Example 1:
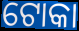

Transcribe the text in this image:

ଟୋକା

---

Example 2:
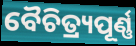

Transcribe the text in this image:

ବୈଚିତ୍ର୍ୟପୂର୍ଣ୍ଣ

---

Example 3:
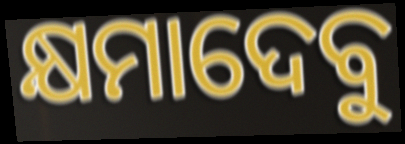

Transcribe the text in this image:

କ୍ଷମାଦେବୁ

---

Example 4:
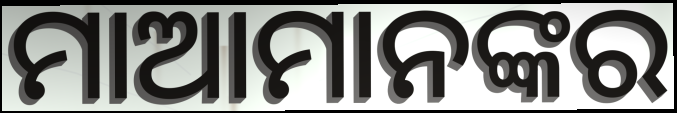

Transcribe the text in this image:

ମାଆମାନଙ୍କର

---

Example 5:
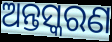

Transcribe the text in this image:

ଅନ୍ତସ୍କରଣ